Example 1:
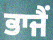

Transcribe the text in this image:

ਭਾਜੈਂ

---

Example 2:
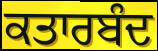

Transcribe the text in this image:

ਕਤਾਰਬੰਦ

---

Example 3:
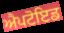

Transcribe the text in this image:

ਐਪਟੋਇਡ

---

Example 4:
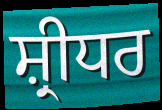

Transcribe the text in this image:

ਸ਼੍ਰੀਧਰ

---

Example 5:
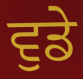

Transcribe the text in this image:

ਵੁਡੇ